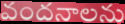
వందనాలను